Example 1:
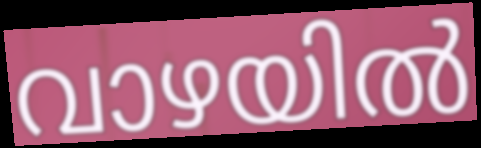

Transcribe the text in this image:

വാഴയിൽ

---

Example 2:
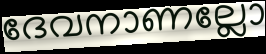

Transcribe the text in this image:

ദേവനാണല്ലോ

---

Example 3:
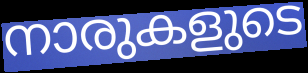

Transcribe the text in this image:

നാരുകളുടെ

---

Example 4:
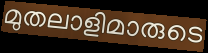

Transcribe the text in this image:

മുതലാളിമാരുടെ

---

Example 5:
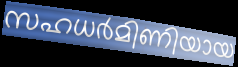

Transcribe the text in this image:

സഹധർമിണിയായ